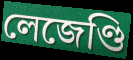
লেজেণ্ডি